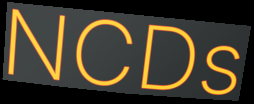
NCDs